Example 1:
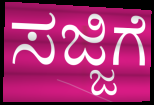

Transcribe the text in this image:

ಸಜ್ಜಿಗೆ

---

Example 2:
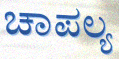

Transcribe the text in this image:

ಚಾಪಲ್ಯ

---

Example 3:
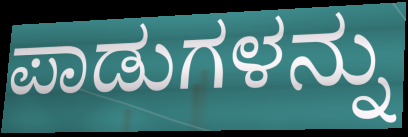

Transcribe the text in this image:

ಪಾಡುಗಳನ್ನು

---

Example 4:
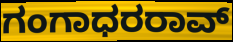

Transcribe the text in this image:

ಗಂಗಾಧರರಾವ್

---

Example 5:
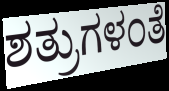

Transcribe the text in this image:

ಶತ್ರುಗಳಂತೆ